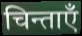
चिन्ताएँ